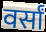
वर्सां